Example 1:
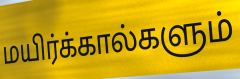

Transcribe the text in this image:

மயிர்க்கால்களும்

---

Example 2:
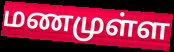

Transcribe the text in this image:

மணமுள்ள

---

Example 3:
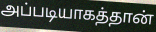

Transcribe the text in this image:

அப்படியாகத்தான்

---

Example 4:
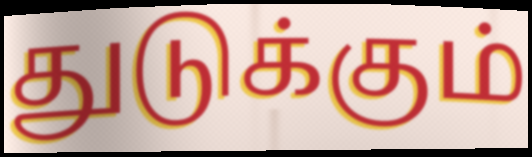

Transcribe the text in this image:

துடுக்கும்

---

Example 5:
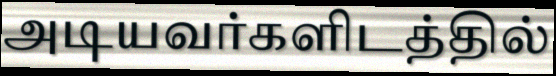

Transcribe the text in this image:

அடியவர்களிடத்தில்